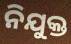
ନିଯୁକ୍ତ